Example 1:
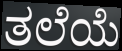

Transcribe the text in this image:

ತಲೆಯೆ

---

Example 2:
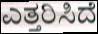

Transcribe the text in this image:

ಎತ್ತರಿಸಿದೆ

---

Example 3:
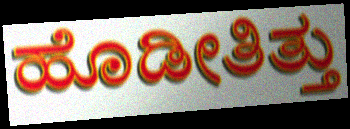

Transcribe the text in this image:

ಹೊಡೀತಿತ್ತು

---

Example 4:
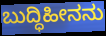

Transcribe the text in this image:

ಬುದ್ಧಿಹೀನನು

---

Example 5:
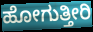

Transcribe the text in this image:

ಹೋಗುತ್ತೀರಿ